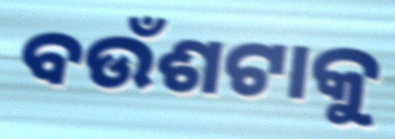
ବଉଁଶଟାକୁ